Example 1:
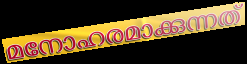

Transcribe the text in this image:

മനോഹരമാക്കുന്നത്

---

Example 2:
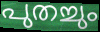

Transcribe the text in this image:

പുതച്ചും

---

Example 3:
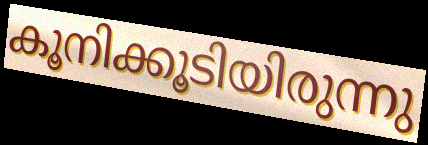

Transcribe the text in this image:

കൂനിക്കൂടിയിരുന്നു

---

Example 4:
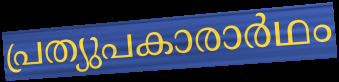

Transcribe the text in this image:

പ്രത്യുപകാരാർഥം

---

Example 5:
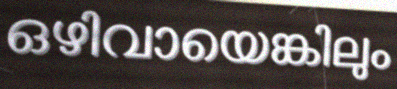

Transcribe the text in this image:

ഒഴിവായെങ്കിലും